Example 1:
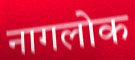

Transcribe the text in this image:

नागलोक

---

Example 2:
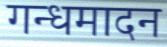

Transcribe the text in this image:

गन्धमादन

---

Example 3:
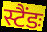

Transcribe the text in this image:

स्टैंडः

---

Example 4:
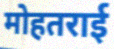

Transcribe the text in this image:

मोहतराई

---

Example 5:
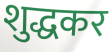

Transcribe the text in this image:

शुद्धकर